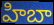
హిబా